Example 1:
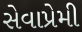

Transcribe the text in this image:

સેવાપ્રેમી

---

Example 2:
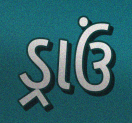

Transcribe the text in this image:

ડ્રાઉં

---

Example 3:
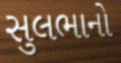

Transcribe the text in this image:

સુલભાનો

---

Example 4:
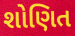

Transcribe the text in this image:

શોણિત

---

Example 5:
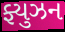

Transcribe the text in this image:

ફ્યુઝન